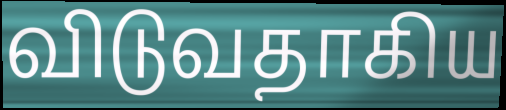
விடுவதாகிய